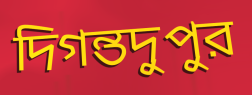
দিগন্তদুপুর